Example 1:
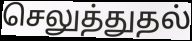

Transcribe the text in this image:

செலுத்துதல்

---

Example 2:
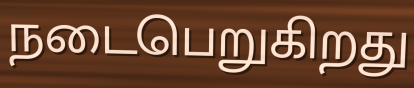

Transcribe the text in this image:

நடைபெறுகிறது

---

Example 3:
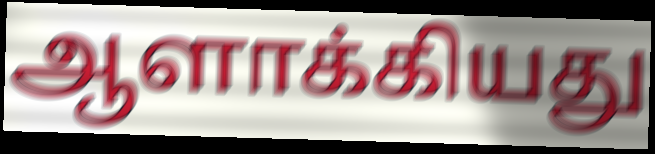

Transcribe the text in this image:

ஆளாக்கியது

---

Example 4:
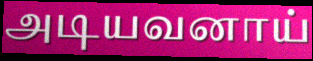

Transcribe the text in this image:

அடியவனாய்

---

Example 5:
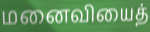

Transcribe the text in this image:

மனைவியைத்